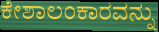
ಕೇಶಾಲಂಕಾರವನ್ನು